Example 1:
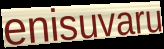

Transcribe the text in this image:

enisuvaru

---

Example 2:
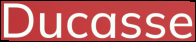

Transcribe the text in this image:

Ducasse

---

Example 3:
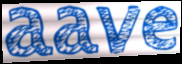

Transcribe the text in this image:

aave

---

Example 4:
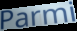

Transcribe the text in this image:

Parmi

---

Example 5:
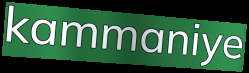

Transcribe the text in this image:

kammaniye